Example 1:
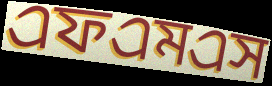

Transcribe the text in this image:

এফএমএস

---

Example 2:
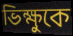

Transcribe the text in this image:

ভিক্ষুকে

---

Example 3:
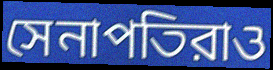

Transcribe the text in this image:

সেনাপতিরাও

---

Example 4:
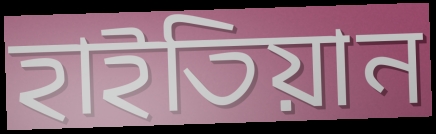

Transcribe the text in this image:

হাইতিয়ান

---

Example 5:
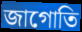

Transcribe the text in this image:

জাগোতি